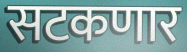
सटकणार